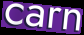
carn